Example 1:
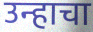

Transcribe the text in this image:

उन्हाचा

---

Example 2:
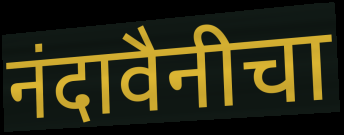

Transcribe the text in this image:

नंदावैनीचा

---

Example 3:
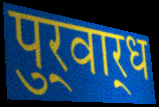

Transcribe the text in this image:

पुर्वार्ध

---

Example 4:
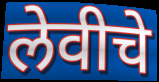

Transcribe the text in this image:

लेवीचे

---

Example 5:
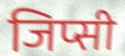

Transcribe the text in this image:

जिप्सी